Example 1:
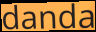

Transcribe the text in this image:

danda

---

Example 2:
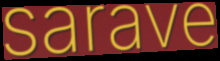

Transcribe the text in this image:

sarave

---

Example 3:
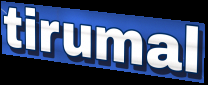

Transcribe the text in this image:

tirumal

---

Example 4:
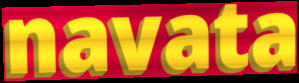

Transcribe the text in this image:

navata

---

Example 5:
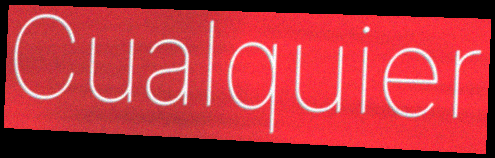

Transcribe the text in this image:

Cualquier